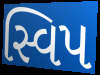
સ્વિપ